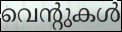
വെന്റുകൾ